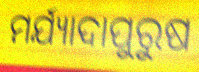
ମର୍ଯ୍ୟାଦାପୁରୁଷ